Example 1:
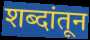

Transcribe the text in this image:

शब्दांतून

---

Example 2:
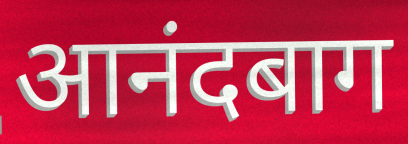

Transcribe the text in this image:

आनंदबाग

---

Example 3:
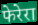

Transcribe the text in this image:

फेरेरा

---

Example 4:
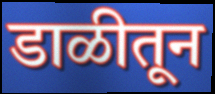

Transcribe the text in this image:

डाळीतून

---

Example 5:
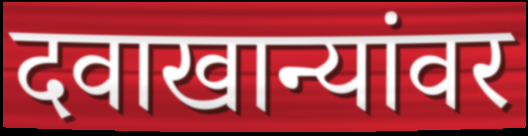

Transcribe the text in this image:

दवाखान्यांवर